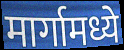
मार्गामध्ये